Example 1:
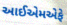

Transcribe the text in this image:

આઈએમએફે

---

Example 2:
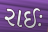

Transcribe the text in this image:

રાઈઃ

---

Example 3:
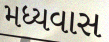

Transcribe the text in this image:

મધ્યવાસ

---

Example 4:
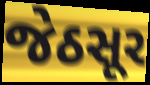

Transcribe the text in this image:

જેઠસૂર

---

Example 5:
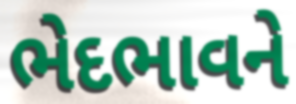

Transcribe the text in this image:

ભેદભાવને